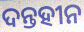
ଦନ୍ତହୀନ